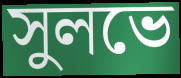
সুলভে